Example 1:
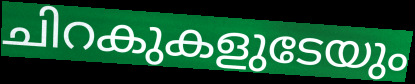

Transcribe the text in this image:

ചിറകുകളുടേയും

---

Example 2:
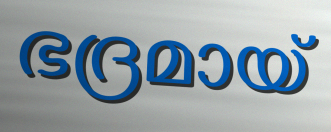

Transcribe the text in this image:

ഭദ്രമായ്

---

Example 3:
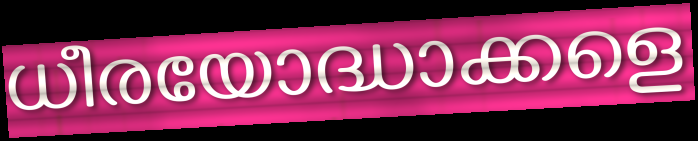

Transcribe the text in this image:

ധീരയോദ്ധാക്കളെ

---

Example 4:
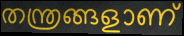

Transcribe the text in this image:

തന്ത്രങ്ങളാണ്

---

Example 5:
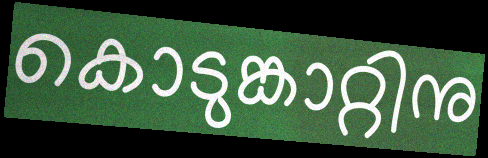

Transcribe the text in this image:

കൊടുങ്കാറ്റിനു